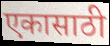
एकासाठी